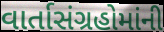
વાર્તાસંગ્રહોમાંની